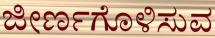
ಜೀರ್ಣಗೊಳಿಸುವ